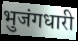
भुजंगधारी